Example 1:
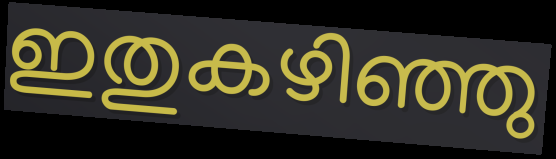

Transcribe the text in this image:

ഇതുകഴിഞ്ഞു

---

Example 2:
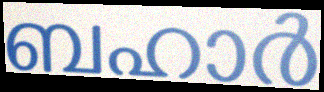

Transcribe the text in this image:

ബഹാർ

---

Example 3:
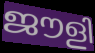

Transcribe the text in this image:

ജൗളി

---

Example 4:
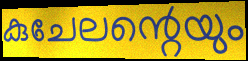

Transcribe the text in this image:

കുചേലന്റെയും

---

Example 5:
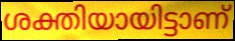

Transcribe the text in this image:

ശക്തിയായിട്ടാണ്